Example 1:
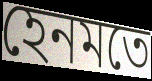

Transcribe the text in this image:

হেনমতে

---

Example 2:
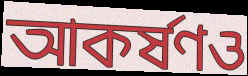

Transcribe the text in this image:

আকর্ষণও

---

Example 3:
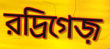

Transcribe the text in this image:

রদ্রিগেজ়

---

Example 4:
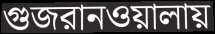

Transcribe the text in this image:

গুজরানওয়ালায়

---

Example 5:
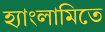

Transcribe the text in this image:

হ্যাংলামিতে